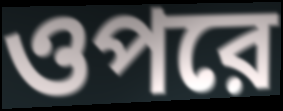
ওপরে